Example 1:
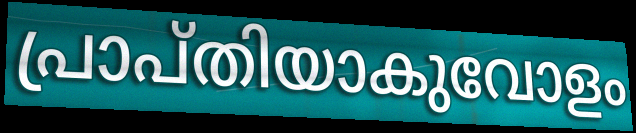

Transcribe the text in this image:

പ്രാപ്തിയാകുവോളം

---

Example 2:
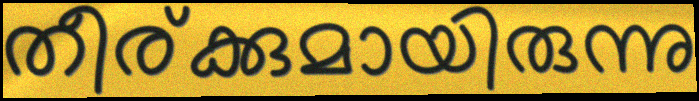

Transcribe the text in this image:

തീര്ക്കുമായിരുന്നു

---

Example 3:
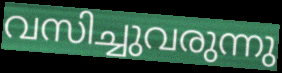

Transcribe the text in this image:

വസിച്ചുവരുന്നു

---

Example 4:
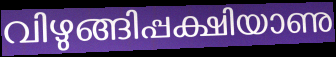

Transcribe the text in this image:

വിഴുങ്ങിപ്പക്ഷിയാണു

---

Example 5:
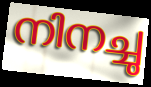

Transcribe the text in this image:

നിനച്ചു